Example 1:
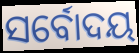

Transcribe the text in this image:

ସର୍ବୋଦୟ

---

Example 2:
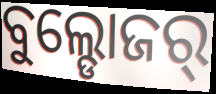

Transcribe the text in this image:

ବୁଲ୍ଡୋଜର୍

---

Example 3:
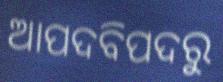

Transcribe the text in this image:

ଆପଦବିପଦରୁ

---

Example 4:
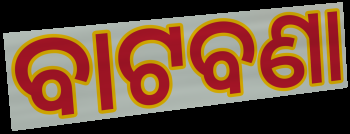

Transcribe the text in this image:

ବାଟବଣା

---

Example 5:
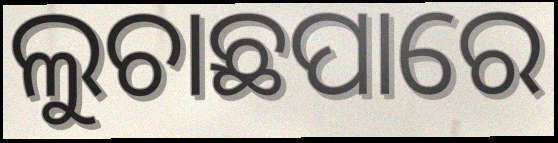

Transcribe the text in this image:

ଲୁଚାଛପାରେ